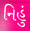
નિહું